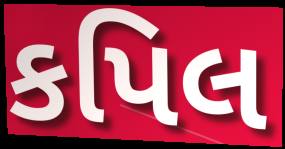
કપિલ